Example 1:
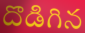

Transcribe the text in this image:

దొడిగిన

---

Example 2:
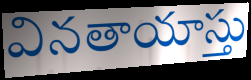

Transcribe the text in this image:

వినతాయాస్తు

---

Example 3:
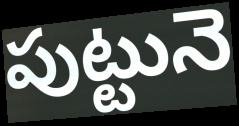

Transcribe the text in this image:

పుట్టునె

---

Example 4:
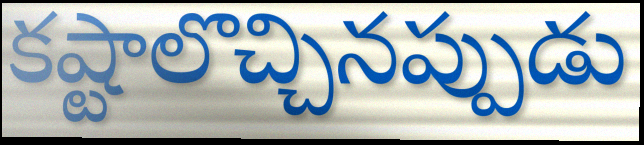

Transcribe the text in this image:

కష్టాలొచ్చినప్పుడు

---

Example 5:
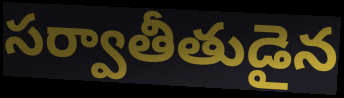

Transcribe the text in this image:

సర్వాతీతుడైన